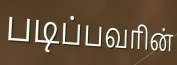
படிப்பவரின்